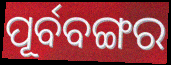
ପୂର୍ବବଙ୍ଗର